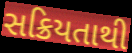
સક્રિયતાથી